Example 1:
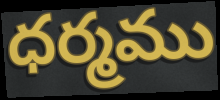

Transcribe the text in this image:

ధర్మము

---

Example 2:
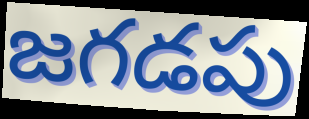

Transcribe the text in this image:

జగడపు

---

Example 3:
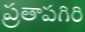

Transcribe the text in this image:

ప్రతాపగిరి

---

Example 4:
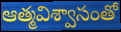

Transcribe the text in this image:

ఆత్మవిశ్వాసంతో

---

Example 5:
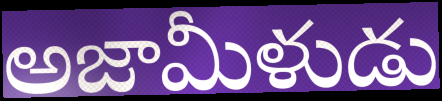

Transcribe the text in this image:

అజామీళుడు